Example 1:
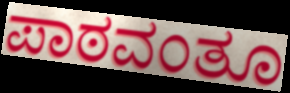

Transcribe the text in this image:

ಪಾಠವಂತೂ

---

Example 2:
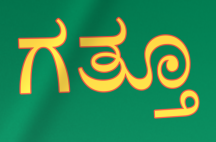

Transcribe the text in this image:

ಗತ್ತೂ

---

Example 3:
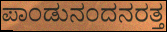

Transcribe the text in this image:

ಪಾಂಡುನಂದನರತ್ತ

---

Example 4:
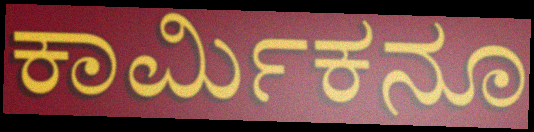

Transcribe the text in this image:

ಕಾರ್ಮಿಕನೂ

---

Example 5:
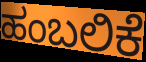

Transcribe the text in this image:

ಹಂಬಲಿಕೆ